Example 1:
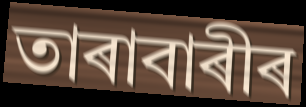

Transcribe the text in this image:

তাৰাবাৰীৰ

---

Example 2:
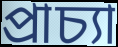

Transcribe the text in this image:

প্ৰাচ্যা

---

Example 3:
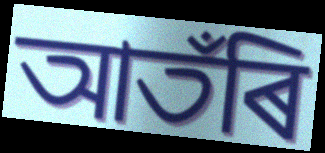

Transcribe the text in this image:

আতঁৰি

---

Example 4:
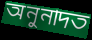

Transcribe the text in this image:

অনুনাদত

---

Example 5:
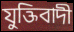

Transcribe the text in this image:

যুক্তিবাদী